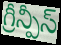
గ్రీన్పీస్